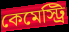
কেমেস্ট্রি